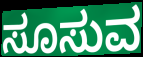
ಸೂಸುವ